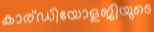
കാര്ഡിയോളജിയുടെ